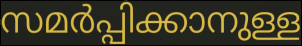
സമർപ്പിക്കാനുള്ള